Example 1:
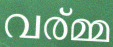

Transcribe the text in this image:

വര്മ്മ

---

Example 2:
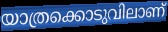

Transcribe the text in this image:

യാത്രക്കൊടുവിലാണ്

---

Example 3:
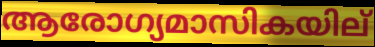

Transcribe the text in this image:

ആരോഗ്യമാസികയില്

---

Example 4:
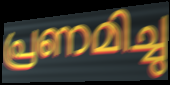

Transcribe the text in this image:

പ്രണമിച്ചു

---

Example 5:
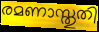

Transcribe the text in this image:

രമണാസ്തുതി